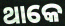
ଥାକେ